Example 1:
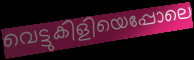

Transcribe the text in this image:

വെട്ടുകിളിയെപ്പോലെ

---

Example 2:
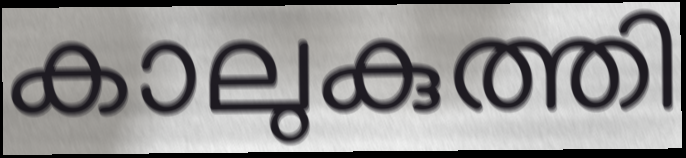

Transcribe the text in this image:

കാലുകുത്തി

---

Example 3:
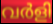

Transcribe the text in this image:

വർളി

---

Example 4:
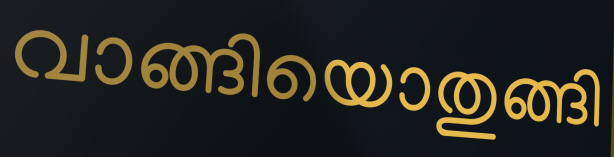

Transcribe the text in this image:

വാങ്ങിയൊതുങ്ങി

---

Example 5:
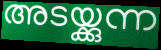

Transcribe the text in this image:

അടയ്ക്കുന്ന